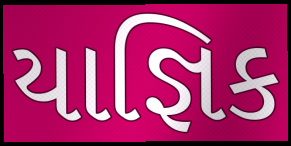
યાજ્ઞિક